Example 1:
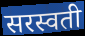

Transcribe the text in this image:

सरस्वती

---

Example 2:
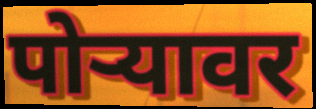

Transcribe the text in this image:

पोर्‍यावर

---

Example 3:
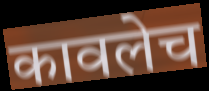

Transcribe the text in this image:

कावलेच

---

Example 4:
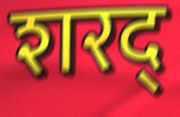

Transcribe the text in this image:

शरद्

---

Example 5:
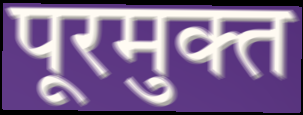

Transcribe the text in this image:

पूरमुक्त